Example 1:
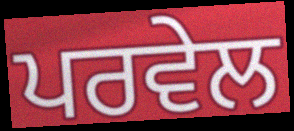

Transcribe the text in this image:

ਪਰਵੇਲ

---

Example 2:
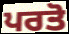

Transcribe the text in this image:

ਪਰਤੋ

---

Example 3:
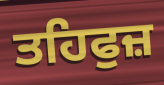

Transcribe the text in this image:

ਤਹਿਫੁਜ਼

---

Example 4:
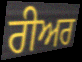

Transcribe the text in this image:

ਰੀਅਰ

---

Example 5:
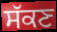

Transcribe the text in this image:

ਸੱਕਣ